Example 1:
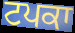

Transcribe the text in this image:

ਟਪਕਾ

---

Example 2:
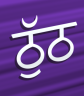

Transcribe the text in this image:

ਠੁੱਠ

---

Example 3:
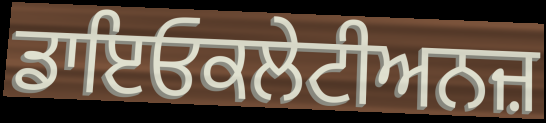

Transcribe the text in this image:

ਡਾਇਓਕਲੇਟੀਅਨਜ਼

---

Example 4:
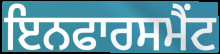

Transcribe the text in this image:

ਇਨਫਾਰਸਮੈਂਟ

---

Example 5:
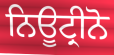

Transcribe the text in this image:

ਨਿਊਟ੍ਰੀਨੋ